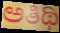
ಅತಿಥಿ